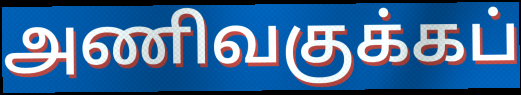
அணிவகுக்கப்